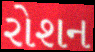
રોશન